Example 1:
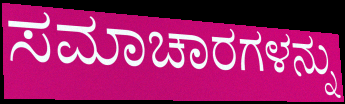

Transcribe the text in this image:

ಸಮಾಚಾರಗಳನ್ನು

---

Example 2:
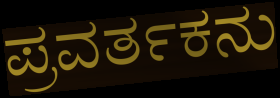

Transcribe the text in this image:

ಪ್ರವರ್ತಕನು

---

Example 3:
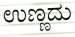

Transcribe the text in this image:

ಉಣ್ಣದು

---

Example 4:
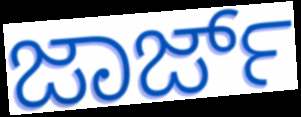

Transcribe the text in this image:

ಜಾರ್ಜ್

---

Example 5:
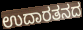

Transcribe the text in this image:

ಉದಾರತನದ